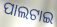
ପାଲଟାଇ